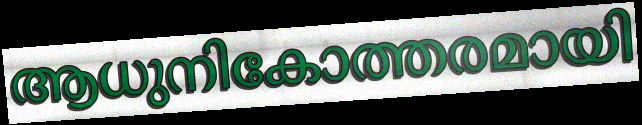
ആധുനികോത്തരമായി